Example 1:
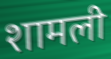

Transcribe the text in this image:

शामली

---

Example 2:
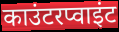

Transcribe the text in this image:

काउंटरप्वाइंट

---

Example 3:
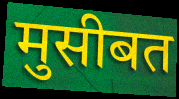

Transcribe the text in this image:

मुसीबत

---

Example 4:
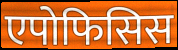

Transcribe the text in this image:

एपोफिसिस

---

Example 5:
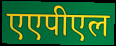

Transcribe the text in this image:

एएपीएल